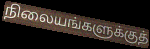
நிலையங்களுக்குத்